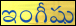
ఇంగీషు